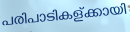
പരിപാടികള്ക്കായി